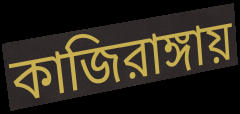
কাজিরাঙ্গায়